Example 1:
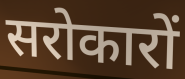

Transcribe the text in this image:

सरोकारों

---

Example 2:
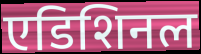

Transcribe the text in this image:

एडिशिनल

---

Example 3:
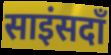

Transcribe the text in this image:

साइंसदाँ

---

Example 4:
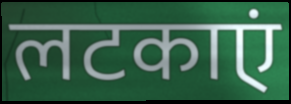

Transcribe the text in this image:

लटकाएं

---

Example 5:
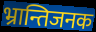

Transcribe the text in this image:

भ्रान्तिजनक